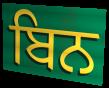
ਬਿਨ